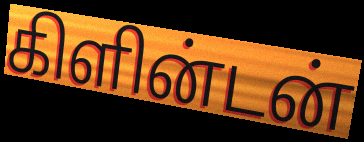
கிளின்டன்